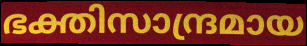
ഭക്തിസാന്ദ്രമായ